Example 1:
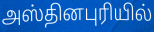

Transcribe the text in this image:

அஸ்தினபுரியில்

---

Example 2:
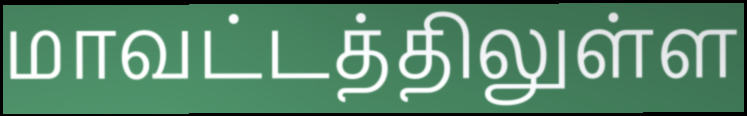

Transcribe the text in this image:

மாவட்டத்திலுள்ள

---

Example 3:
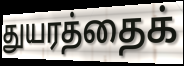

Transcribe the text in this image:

துயரத்தைக்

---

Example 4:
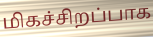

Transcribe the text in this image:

மிகச்சிறப்பாக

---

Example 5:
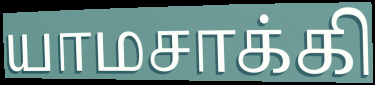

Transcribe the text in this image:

யாமசாக்கி